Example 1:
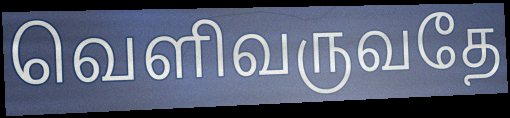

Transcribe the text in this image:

வெளிவருவதே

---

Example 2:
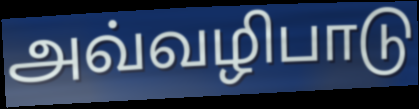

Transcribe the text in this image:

அவ்வழிபாடு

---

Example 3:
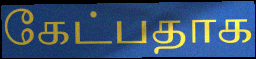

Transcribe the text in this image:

கேட்பதாக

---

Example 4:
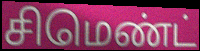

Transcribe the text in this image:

சிமெண்ட்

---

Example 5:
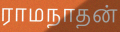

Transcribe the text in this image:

ராமநாதன்